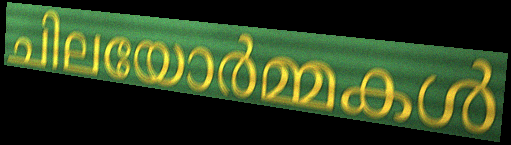
ചിലയോർമ്മകൾ